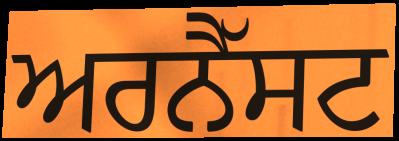
ਅਰਨੈੱਸਟ